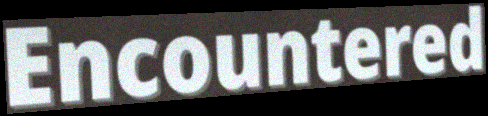
Encountered